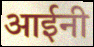
आईनी